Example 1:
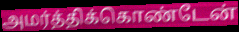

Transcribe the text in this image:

அமர்த்திக்கொண்டேன்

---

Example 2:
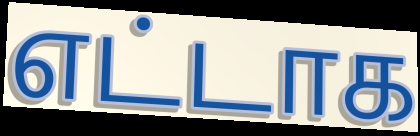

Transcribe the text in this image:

எட்டாக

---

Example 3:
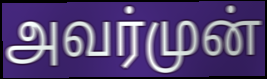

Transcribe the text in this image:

அவர்முன்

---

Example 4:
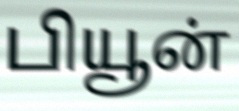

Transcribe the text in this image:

பியூன்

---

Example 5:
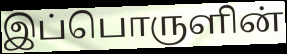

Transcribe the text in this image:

இப்பொருளின்